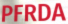
PFRDA